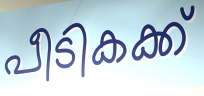
പീടികക്ക്